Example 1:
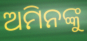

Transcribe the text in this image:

ଅମିନଙ୍କୁ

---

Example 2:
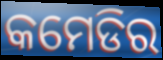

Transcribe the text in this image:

କମେଡିର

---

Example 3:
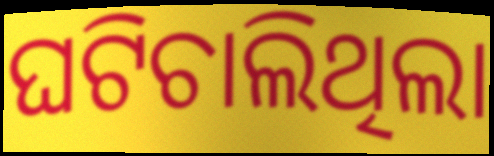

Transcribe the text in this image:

ଘଟିଚାଲିଥିଲା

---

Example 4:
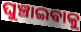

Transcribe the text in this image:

ଘୁଞ୍ଚାଇବାକୁ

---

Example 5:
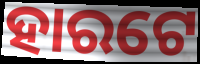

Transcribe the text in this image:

ହାରଟେ